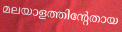
മലയാളത്തിന്റേതായ